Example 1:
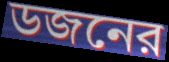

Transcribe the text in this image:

ডজনের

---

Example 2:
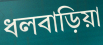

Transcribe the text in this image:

ধলবাড়িয়া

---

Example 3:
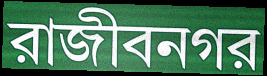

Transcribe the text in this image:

রাজীবনগর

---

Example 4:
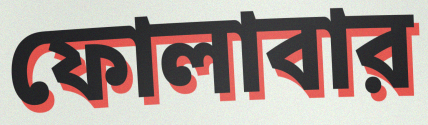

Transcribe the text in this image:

ফোলাবার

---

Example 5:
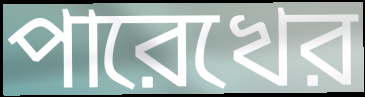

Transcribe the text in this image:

পারেখের